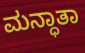
ಮನ್ಧಾತಾ